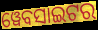
ୱେବସାଇଟର